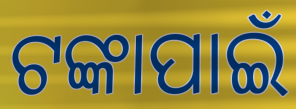
ଟଙ୍କାପାଇଁ